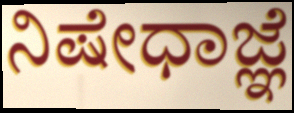
ನಿಷೇಧಾಜ್ಞೆ